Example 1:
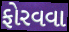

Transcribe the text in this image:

ફોરવવા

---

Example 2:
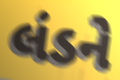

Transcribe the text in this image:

લંડને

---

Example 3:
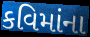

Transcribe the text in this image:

કવિમાંના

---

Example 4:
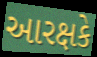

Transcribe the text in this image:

આરક્ષકે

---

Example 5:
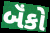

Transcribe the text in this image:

બૅંકો